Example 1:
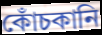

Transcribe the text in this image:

কোঁচকানি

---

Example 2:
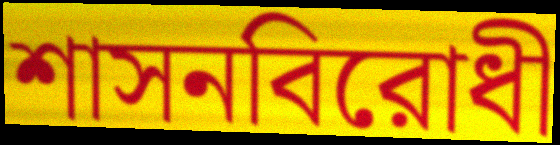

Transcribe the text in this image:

শাসনবিরোধী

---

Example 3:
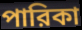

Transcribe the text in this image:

পারিকা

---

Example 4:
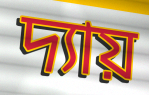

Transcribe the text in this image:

দ্যায়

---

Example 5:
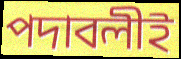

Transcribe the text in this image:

পদাবলীই